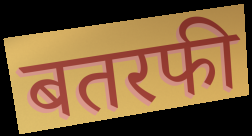
बतरफी